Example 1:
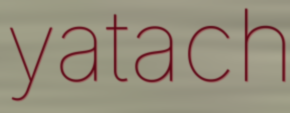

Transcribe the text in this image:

yatach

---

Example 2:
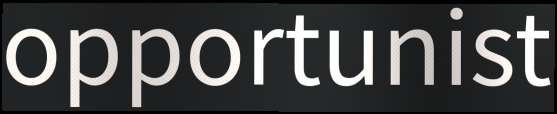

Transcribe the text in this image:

opportunist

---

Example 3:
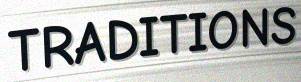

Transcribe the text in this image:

TRADITIONS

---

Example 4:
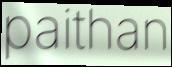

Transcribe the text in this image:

paithan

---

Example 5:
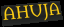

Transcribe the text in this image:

AHUJA